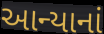
આન્યાનાં